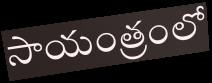
సాయంత్రంలో